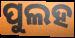
ପୁଲହ